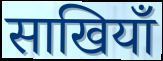
साखियाँ